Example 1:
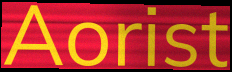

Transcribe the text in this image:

Aorist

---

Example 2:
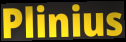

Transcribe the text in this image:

Plinius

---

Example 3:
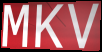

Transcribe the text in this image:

MKV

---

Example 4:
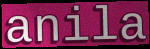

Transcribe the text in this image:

anila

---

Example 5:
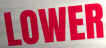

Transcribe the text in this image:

LOWER